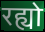
रह्यो